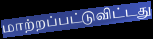
மாற்றப்பட்டுவிட்டது